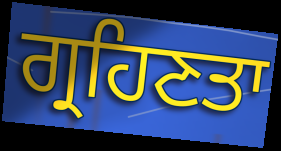
ਗ੍ਰਹਿਣਤਾ